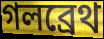
গলব্রেথ